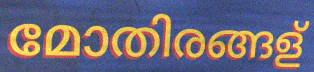
മോതിരങ്ങള്